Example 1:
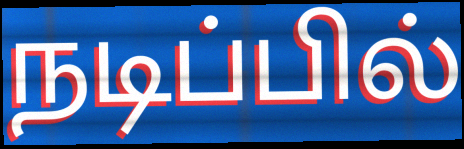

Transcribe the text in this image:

நடிப்பில்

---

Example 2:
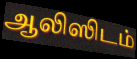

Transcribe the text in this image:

ஆலிஸிடம்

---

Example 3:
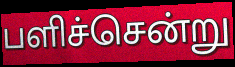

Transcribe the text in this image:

பளிச்சென்று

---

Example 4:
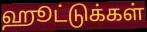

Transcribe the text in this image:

ஹூட்டுக்கள்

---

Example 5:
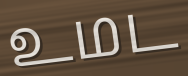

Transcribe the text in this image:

உமட